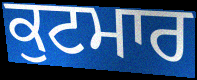
ਕੁਟਮਾਰ